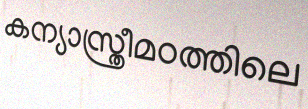
കന്യാസ്ത്രീമഠത്തിലെ